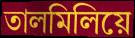
তালমিলিয়ে